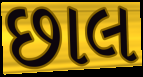
છાલ